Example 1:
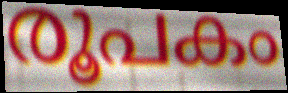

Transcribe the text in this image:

രൂപകം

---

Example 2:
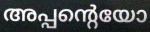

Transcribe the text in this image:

അപ്പന്റെയോ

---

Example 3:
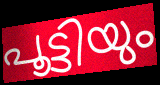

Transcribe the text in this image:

പൂട്ടിയും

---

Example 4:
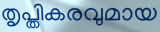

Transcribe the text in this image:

തൃപ്തികരവുമായ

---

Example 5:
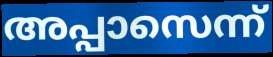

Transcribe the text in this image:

അപ്പാസെന്ന്